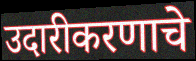
उदारीकरणाचे